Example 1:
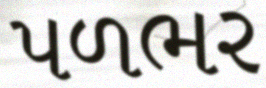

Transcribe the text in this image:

પળભર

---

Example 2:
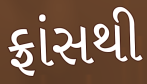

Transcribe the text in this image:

ફ્રાંસથી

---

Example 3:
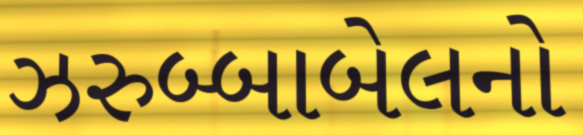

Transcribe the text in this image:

ઝરુબ્બાબેલનો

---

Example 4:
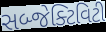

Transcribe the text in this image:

સબ્જેક્ટિવિટી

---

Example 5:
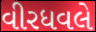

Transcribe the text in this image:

વીરધવલે